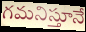
గమనిస్తూనే